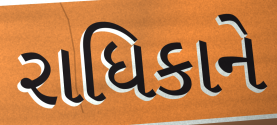
રાધિકાને